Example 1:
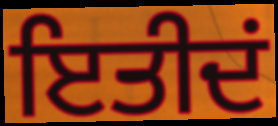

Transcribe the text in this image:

ਇਤੀਦਂ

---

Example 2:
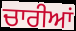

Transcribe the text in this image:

ਚਾਰੀਆਂ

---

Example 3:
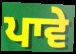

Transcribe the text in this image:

ਪਾਵੇ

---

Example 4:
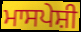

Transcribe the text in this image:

ਮਾਸਪੇਸ਼ੀ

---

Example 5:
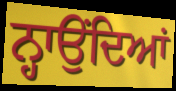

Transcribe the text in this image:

ਨ੍ਹਾਉਂਦਿਆਂ